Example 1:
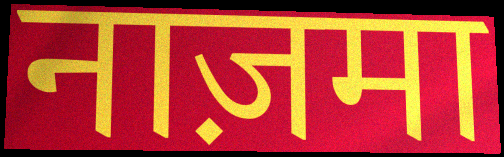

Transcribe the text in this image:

नाज़मा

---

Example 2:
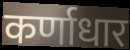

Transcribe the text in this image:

कर्णाधार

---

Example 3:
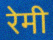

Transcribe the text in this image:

रेमी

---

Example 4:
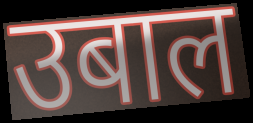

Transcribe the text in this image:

उबाल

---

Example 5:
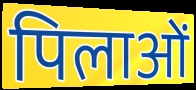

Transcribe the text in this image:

पिलाओं